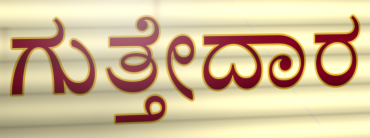
ಗುತ್ತೇದಾರ